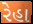
રેહા